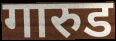
गारुड